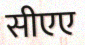
सीएए